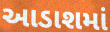
આડાશમાં